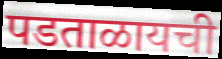
पडताळायची